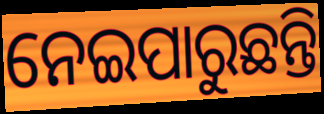
ନେଇପାରୁଛନ୍ତି